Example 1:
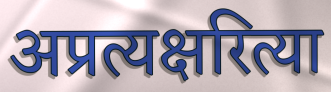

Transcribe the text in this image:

अप्रत्यक्षरित्या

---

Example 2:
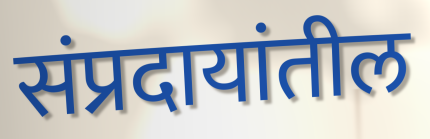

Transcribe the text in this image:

संप्रदायांतील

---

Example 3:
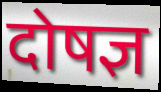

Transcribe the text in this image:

दोषज्ञ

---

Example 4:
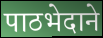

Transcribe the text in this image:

पाठभेदाने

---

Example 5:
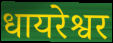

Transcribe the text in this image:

धायरेश्वर